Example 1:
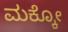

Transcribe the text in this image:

ಮಕ್ಕೋ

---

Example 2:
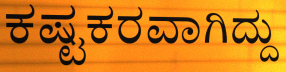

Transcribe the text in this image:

ಕಷ್ಟಕರವಾಗಿದ್ದು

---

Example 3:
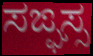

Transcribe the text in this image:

ಸಙ್ಘಸ್ಸ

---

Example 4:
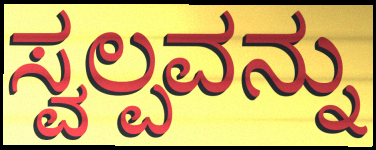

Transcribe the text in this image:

ಸ್ವಲ್ಪವನ್ನು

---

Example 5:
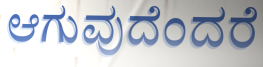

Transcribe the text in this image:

ಆಗುವುದೆಂದರೆ